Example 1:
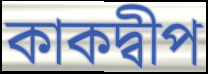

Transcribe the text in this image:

কাকদ্বীপ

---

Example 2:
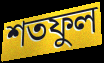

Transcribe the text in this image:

শতফুল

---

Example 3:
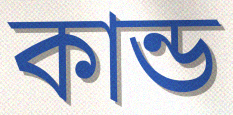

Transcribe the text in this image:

কান্ড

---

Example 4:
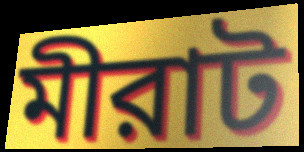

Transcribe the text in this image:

মীরাট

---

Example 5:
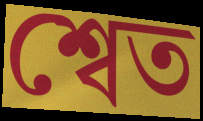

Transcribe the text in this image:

শ্বেত